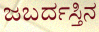
ಜಬರ್ದಸ್ತಿನ